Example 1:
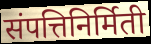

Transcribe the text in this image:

संपत्तिनिर्मिती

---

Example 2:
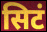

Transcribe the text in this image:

सिटं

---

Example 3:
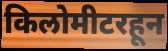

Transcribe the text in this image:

किलोमीटरहून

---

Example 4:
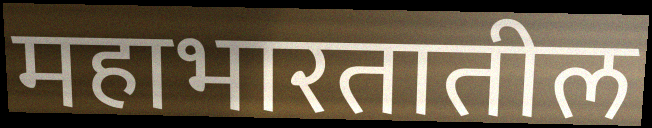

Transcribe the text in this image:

महाभारतातील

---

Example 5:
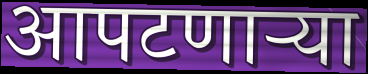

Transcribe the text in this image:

आपटणाऱ्या